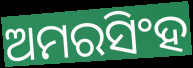
ଅମରସିଂହ